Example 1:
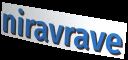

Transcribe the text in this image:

niravrave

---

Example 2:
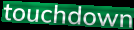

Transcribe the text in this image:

touchdown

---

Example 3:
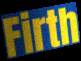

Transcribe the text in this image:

Firth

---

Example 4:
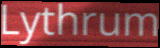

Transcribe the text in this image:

Lythrum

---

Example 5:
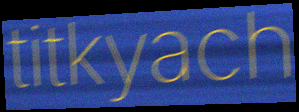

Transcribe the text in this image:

titkyach